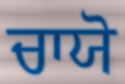
ਚਾਯੋ